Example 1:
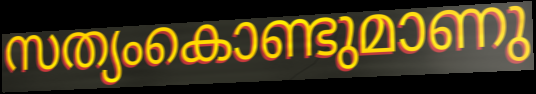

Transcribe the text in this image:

സത്യംകൊണ്ടുമാണു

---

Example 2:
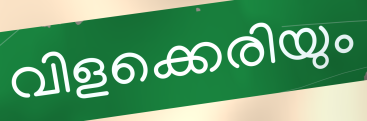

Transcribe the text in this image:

വിളക്കെരിയും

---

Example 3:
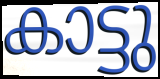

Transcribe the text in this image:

കാട്ടു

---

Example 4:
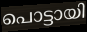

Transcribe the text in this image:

പൊട്ടായി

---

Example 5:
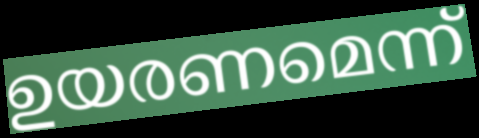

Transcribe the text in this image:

ഉയരണമെന്ന്